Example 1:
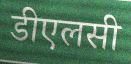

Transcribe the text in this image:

डीएलसी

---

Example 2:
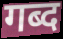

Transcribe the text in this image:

गब्द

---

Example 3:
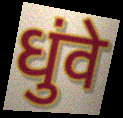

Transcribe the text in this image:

धुंवे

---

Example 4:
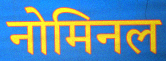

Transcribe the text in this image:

नोमिनल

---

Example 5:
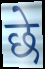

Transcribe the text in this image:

छे